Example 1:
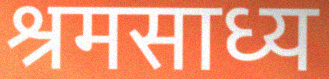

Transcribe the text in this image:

श्रमसाध्य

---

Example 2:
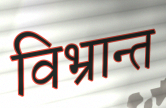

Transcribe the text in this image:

विभ्रान्त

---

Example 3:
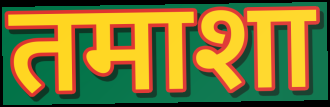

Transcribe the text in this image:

तमाशा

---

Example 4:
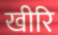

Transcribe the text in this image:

खीरि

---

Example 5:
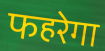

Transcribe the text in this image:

फहरेगा